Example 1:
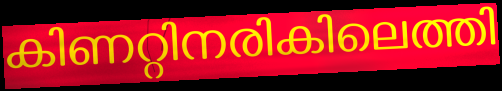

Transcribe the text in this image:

കിണറ്റിനരികിലെത്തി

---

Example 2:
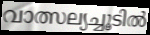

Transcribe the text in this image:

വാത്സല്യച്ചൂടിൽ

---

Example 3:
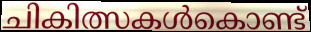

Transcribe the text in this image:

ചികിത്സകൾകൊണ്ട്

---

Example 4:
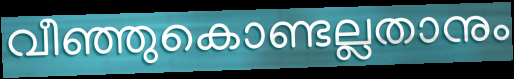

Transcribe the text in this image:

വീഞ്ഞുകൊണ്ടല്ലതാനും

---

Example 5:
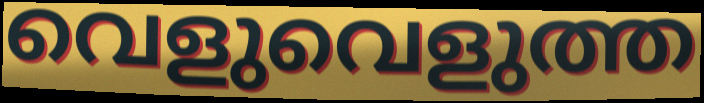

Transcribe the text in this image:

വെളുവെളുത്ത